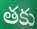
తకు